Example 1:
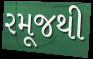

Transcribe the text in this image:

રમૂજથી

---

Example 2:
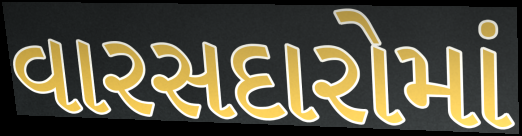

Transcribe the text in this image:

વારસદારોમાં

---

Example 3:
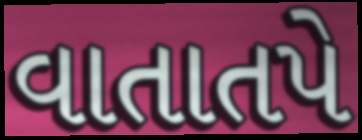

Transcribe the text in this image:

વાતાતપે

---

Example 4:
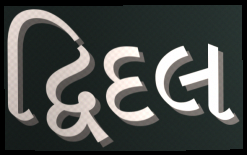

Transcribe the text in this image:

દ્વિદલ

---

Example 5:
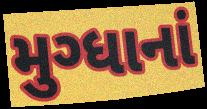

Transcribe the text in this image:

મુગ્ધાનાં